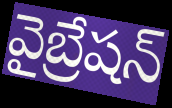
వైబ్రేషన్